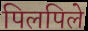
पिलपिले